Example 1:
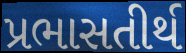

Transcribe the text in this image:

પ્રભાસતીર્થ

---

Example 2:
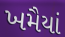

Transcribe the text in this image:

ખમૈયાં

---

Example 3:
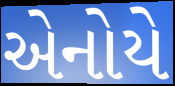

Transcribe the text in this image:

એનોયે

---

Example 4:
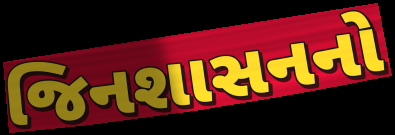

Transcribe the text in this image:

જિનશાસનનો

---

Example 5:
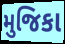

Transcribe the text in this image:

મુજિકા